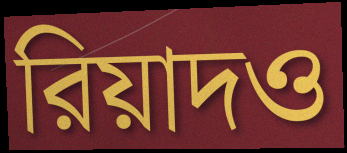
রিয়াদও